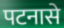
पटनासे